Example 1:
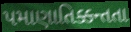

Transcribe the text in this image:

પમાણાતિક્કન્તતા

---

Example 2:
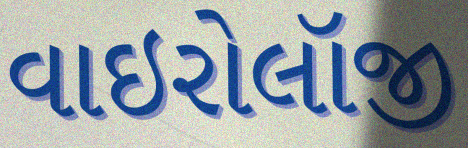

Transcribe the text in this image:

વાઇરોલૉજી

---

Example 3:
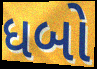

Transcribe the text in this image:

ધબો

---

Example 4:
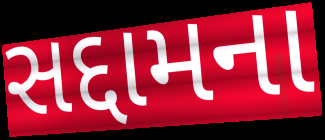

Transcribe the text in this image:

સદ્દામના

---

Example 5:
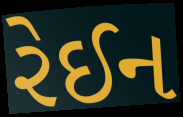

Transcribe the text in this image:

રેઈન